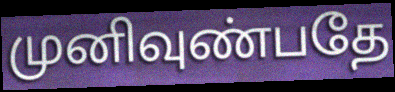
முனிவுண்பதே